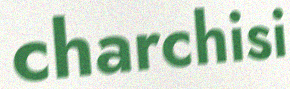
charchisi